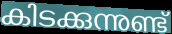
കിടക്കുന്നുണ്ട്